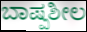
ಬಾಷ್ಪಶೀಲ